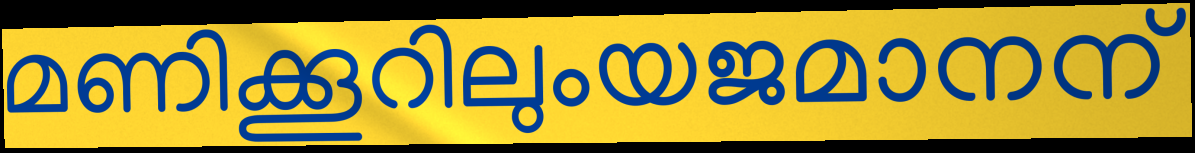
മണിക്കൂറിലുംയജമാനന്